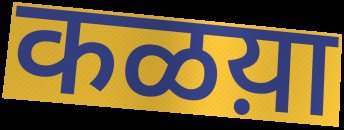
कळय़ा